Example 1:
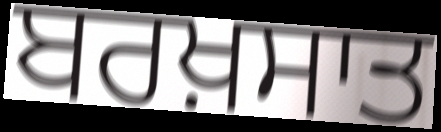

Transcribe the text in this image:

ਬਰਖ਼ਸਾਤ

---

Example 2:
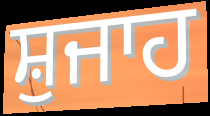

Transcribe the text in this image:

ਸ਼ੁਜਾਹ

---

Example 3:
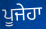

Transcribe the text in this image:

ਪੂਜੇਹਾ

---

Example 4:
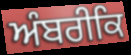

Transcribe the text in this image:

ਅੰਬਰੀਕਿ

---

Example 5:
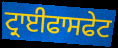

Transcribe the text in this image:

ਟ੍ਰਾਈਫਾਸਫੇਟ